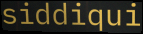
siddiqui